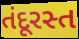
તંદૂરસ્ત